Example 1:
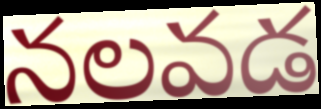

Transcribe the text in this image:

నలవడ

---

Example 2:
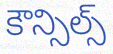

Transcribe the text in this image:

కౌన్సిల్స్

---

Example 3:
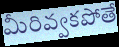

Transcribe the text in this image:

మీరివ్వకపోతే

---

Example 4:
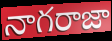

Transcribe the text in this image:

నాగరాజా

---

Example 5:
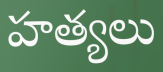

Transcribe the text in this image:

హత్యలు